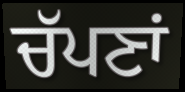
ਚੱਪਣਾਂ